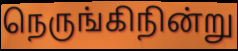
நெருங்கிநின்று